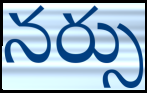
నర్సు